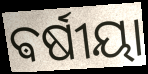
ଵର୍ଷୀୟା